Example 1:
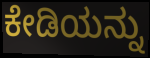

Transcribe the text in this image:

ಕೇಡಿಯನ್ನು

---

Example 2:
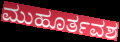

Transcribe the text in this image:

ಮುಹೂರ್ತವಶ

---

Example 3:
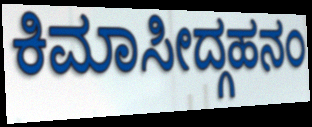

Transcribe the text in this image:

ಕಿಮಾಸೀದ್ಗಹನಂ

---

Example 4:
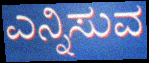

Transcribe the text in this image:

ಎನ್ನಿಸುವ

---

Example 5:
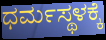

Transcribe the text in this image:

ಧರ್ಮಸ್ಥಳಕ್ಕೆ